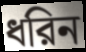
ধরিন